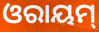
ଓରାୟମ୍